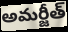
అమర్జీత్